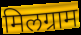
मिलग्राम